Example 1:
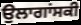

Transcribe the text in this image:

ਉਲਾਗਾਂਸਕੀ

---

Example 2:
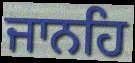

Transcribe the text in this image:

ਜਾਨਹਿ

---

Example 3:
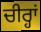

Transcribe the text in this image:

ਚੀਰ੍ਹਾਂ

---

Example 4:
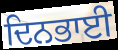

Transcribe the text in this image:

ਦਿਨਭਾਈ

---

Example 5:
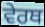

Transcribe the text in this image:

ਵੇਰਥ